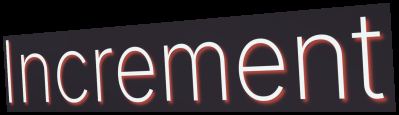
Increment